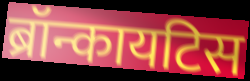
ब्रॉन्कायटिस